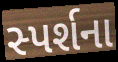
સ્પર્શના